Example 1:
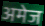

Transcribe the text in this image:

अमेज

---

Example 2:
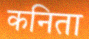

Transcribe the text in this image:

कनिता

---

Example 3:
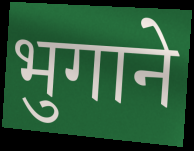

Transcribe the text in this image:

भुगाने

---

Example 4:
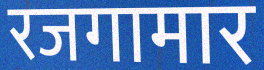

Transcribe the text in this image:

रजगामार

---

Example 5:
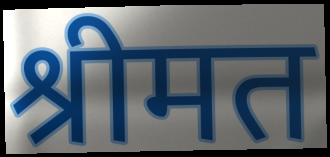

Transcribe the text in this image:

श्रीमत